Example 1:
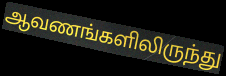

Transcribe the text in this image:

ஆவணங்களிலிருந்து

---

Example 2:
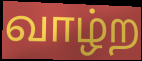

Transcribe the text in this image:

வாழ்ற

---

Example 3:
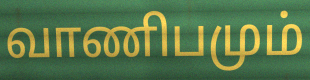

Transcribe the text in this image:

வாணிபமும்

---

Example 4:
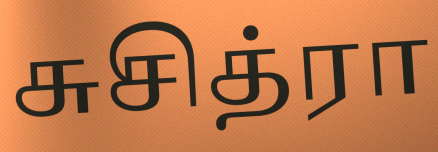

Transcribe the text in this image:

சுசித்ரா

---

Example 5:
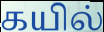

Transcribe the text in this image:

கயில்